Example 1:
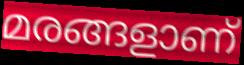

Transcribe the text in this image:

മരങ്ങളാണ്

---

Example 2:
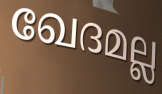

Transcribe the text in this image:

ഖേദമല്ല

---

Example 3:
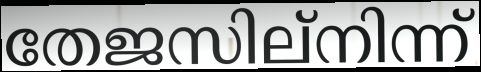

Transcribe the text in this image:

തേജസില്നിന്ന്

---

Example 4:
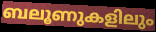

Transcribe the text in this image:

ബലൂണുകളിലും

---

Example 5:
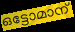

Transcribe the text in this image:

ഒട്ടോമാന്